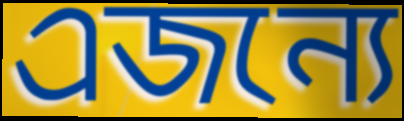
এজন্যে